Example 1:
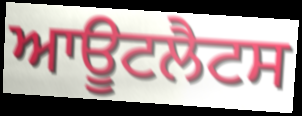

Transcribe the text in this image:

ਆਊਟਲੈਟਸ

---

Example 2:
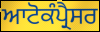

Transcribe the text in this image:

ਆਟੋਕੰਪ੍ਰੈਸਰ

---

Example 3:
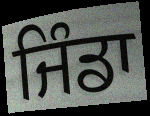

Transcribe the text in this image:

ਜਿੰਡਾ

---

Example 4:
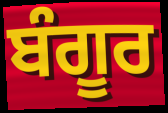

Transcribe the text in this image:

ਬੰਗੂਰ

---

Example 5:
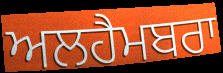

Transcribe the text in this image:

ਅਲਹੈਮਬਰਾ